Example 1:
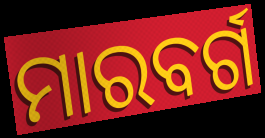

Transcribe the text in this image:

ମାରବର୍ଗ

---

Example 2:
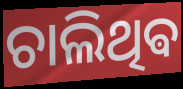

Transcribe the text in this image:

ଚାଲିଥିଵ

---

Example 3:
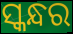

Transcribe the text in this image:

ସ୍କନ୍ଧର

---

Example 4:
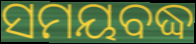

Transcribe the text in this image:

ସମୟବଦ୍ଧ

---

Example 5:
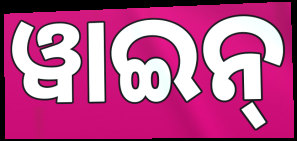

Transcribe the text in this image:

ୱାଇନ୍